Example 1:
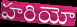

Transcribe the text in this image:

హరియో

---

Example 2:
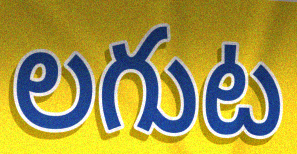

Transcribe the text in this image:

లగుట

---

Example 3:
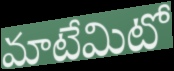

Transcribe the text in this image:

మాటేమిటో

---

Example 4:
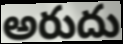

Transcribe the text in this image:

అరుదు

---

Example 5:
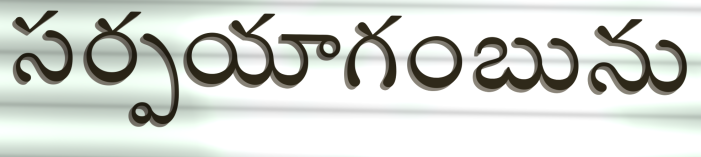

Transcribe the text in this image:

సర్పయాగంబును